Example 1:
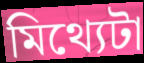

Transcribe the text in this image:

মিথ্যেটা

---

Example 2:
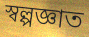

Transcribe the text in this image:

স্বল্পজ্ঞাত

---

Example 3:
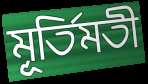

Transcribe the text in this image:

মূর্তিমতী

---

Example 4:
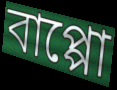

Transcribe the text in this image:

বাপ্পো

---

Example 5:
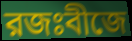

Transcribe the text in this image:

রজঃবীজে